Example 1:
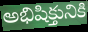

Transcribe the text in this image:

అభిషిక్తునికి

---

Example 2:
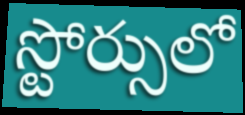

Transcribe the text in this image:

స్టోర్సులో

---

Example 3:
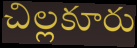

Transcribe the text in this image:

చిల్లకూరు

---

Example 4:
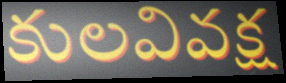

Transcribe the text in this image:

కులవివక్ష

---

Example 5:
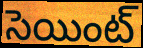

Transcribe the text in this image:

సెయింట్